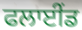
ਫਲਾਈਂਡ